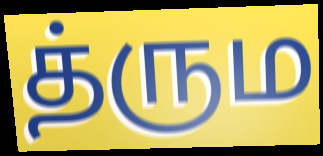
த்ரும